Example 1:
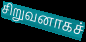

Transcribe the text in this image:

சிறுவனாகச்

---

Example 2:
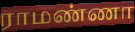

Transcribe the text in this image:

ராமண்ணா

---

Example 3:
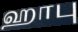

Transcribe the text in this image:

ஹாபு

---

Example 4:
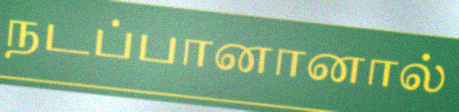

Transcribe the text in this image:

நடப்பானானால்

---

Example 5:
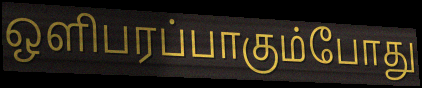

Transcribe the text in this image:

ஒளிபரப்பாகும்போது